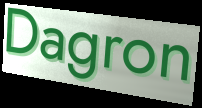
Dagron